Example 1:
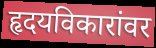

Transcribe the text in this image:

हृदयविकारांवर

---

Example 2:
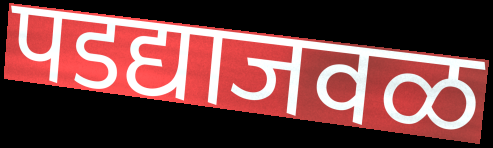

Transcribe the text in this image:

पडद्याजवळ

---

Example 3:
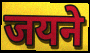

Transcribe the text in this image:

जयने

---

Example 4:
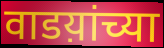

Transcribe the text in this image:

वाडय़ांच्या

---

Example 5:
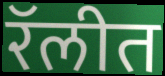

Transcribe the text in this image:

रॅलीत